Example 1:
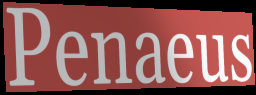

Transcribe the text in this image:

Penaeus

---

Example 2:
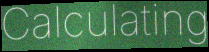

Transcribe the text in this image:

Calculating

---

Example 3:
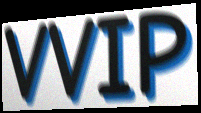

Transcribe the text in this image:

VVIP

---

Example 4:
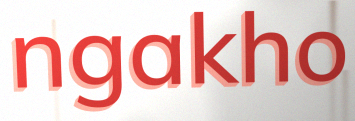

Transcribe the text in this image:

ngakho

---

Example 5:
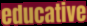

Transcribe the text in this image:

educative